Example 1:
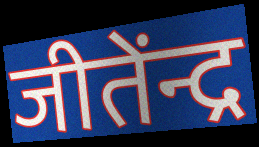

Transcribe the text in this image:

जीतेंन्द्र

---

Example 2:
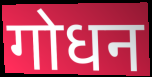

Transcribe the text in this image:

गोधन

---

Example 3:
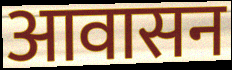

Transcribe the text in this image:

आवासन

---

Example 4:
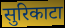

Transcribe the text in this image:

सुरिकाटा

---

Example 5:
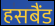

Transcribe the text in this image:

हसबैंड